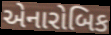
એનારોબિક